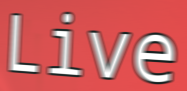
Live